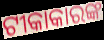
ଟୀକାକାରଙ୍କ